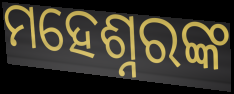
ମହେଶ୍ନରଙ୍କ